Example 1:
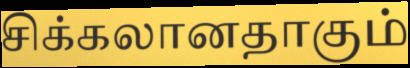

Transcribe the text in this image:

சிக்கலானதாகும்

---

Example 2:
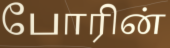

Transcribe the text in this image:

போரின்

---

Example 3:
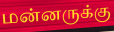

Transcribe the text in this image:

மன்னருக்கு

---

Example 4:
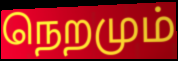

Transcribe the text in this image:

நெறமும்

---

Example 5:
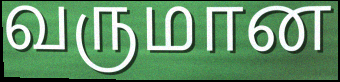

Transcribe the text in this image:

வருமான